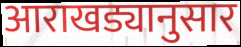
आराखड्यानुसार